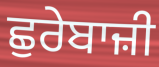
ਛੁਰੇਬਾਜ਼ੀ